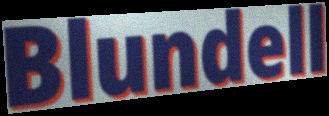
Blundell